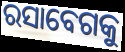
ରସାବେଗକୁ